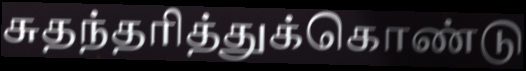
சுதந்தரித்துக்கொண்டு